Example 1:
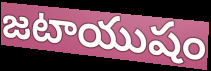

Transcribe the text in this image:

జటాయుషం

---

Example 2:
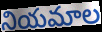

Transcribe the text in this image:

నియమాల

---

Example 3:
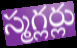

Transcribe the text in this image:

స్మగ్లర్లు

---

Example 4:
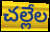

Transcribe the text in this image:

చల్లేల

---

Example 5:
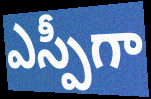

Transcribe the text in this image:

ఎస్పీగా